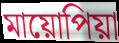
মায়োপিয়া